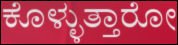
ಕೊಳ್ಳುತ್ತಾರೋ